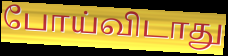
போய்விடாது